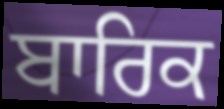
ਬਾਰਿਕ